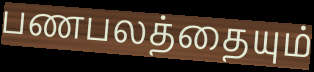
பணபலத்தையும்